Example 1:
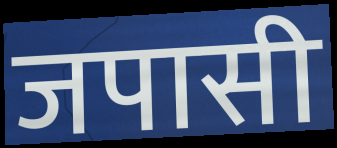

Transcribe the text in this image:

जपासी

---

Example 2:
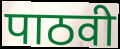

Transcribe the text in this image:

पाठवी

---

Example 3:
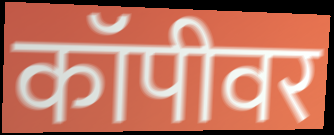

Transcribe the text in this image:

कॉपीवर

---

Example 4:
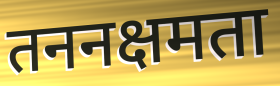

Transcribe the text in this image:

तननक्षमता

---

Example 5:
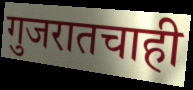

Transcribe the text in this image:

गुजरातचाही